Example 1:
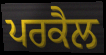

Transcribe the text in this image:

ਪਰਕੈਲ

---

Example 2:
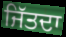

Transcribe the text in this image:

ਜਿੱਤਦਾ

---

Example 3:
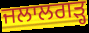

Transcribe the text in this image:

ਜਲਾਲਗੜ੍ਹ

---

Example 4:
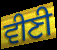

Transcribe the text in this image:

ਵੀਣੀ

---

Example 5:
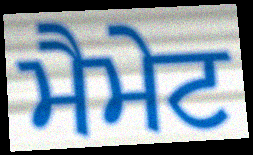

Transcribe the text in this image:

ਮੈਮੇਟ